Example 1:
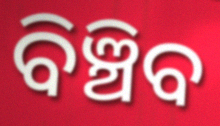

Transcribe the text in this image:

ବିଞ୍ଚିବ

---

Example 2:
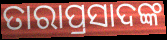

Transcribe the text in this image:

ତାରାପ୍ରସାଦଙ୍କ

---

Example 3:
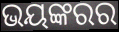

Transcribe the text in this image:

ଭୟଙ୍କରର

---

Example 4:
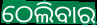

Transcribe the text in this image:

ଠେଲିବାର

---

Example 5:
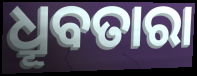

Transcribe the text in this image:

ଧ୍ରୂବତାରା